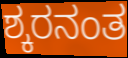
ಶ್ಕರನಂತ